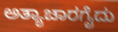
ಅತ್ಯಾಚಾರಗೈದು